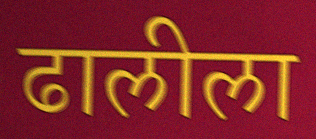
ढालीला